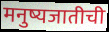
मनुष्यजातीची